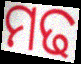
ମଢ